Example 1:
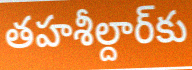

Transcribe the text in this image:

తహశీల్దార్‌కు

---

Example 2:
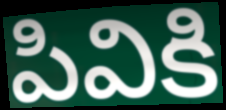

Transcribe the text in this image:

పివికి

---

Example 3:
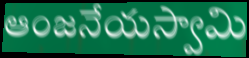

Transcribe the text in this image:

ఆంజనేయస్వామి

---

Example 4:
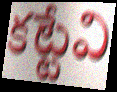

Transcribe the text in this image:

కట్టేవి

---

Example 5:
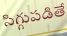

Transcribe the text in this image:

సిగ్గుపడితే